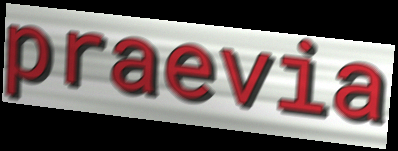
praevia